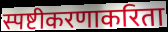
स्पष्टीकरणाकरिता